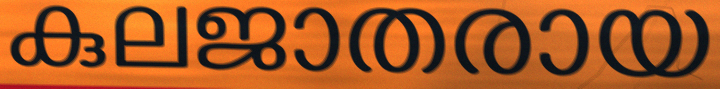
കുലജാതരായ